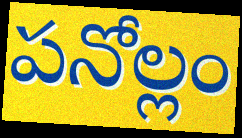
పనోల్లం